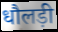
धौलड़ी